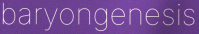
baryongenesis